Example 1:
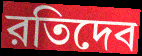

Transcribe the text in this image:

রতিদেব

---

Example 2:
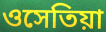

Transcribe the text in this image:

ওসেতিয়া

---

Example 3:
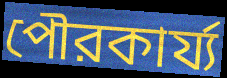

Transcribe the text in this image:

পৌরকার্য্য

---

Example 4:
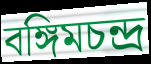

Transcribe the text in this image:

বঙ্গিমচন্দ্র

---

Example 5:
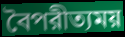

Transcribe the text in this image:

বৈপরীত্যময়